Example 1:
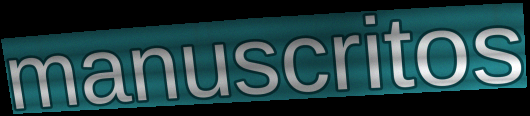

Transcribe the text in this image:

manuscritos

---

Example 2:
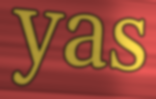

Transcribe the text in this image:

yas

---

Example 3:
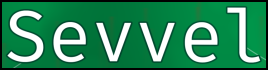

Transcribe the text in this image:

Sevvel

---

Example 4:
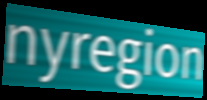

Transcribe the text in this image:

nyregion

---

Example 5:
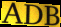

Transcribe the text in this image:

ADB